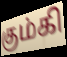
கும்கி